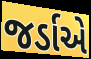
જર્ડાએ